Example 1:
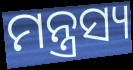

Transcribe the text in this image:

ମନ୍ତ୍ରସ୍ୟ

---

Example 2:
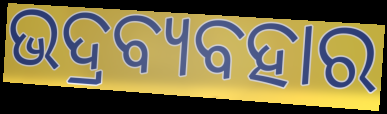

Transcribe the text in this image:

ଭଦ୍ରବ୍ୟବହାର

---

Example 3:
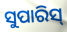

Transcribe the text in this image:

ସୁପାରିସ୍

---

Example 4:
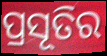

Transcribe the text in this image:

ପ୍ରସୂତିର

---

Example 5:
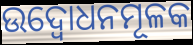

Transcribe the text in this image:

ଉଦ୍ବୋଧନମୂଳକ